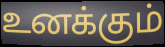
உனக்கும்